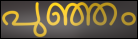
പുഞ്ഞം